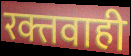
रक्तवाही